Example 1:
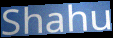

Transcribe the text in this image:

Shahu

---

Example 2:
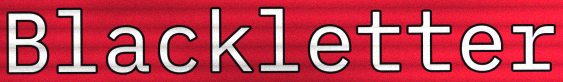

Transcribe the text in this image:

Blackletter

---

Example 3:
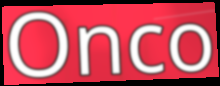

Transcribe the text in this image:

Onco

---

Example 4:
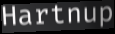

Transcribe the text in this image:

Hartnup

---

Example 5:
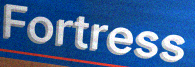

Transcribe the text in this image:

Fortress